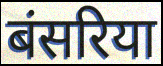
बंसरिया